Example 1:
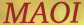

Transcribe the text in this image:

MAOI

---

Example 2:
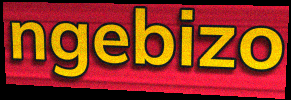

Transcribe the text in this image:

ngebizo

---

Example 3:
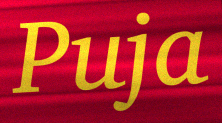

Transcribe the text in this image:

Puja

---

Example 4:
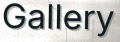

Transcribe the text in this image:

Gallery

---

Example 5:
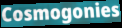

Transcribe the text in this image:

Cosmogonies